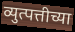
व्युत्पत्तीच्या